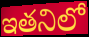
ఇతనిలో